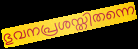
ഭുവനപ്രശസ്തിതന്നെ